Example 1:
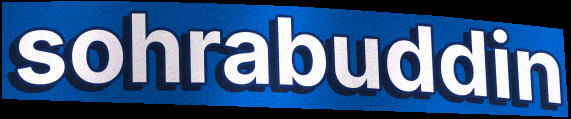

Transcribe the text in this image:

sohrabuddin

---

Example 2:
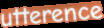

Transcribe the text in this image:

utterence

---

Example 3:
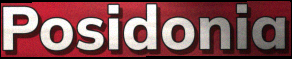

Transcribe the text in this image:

Posidonia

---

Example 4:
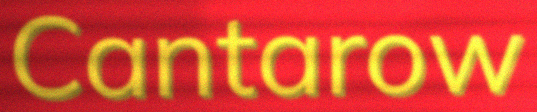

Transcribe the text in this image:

Cantarow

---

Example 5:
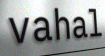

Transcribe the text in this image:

vahal